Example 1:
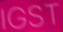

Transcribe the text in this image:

IGST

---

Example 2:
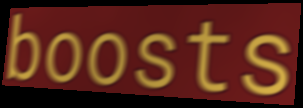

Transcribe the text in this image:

boosts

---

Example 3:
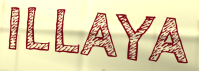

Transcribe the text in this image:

ILLAYA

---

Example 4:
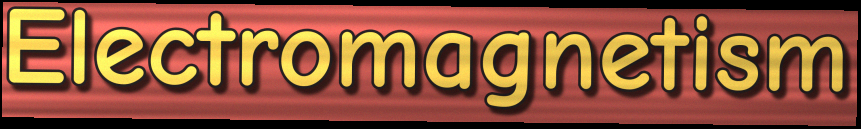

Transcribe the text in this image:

Electromagnetism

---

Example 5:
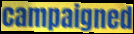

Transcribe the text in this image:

campaigned